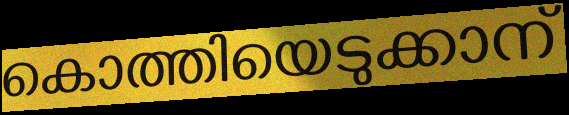
കൊത്തിയെടുക്കാന്